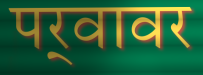
पर्वावर